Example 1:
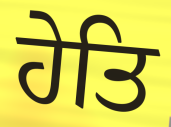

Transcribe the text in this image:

ਹੇਤਿ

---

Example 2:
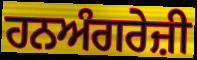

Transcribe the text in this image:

ਹਨਅੰਗਰੇਜ਼ੀ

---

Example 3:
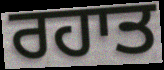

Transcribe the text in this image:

ਰਹਾਤ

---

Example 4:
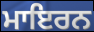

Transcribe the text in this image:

ਮਾਇਰਨ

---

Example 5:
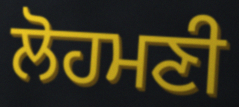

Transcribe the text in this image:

ਲੋਹਮਣੀ